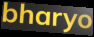
bharyo